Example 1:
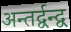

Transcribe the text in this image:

अन्तर्द्वन्द्व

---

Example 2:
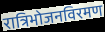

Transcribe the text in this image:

रात्रिभोजनविरमण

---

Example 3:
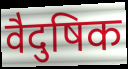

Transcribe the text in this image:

वैदुषिक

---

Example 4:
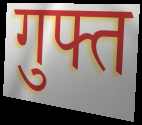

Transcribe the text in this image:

गुफ्त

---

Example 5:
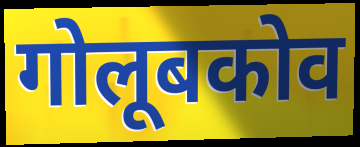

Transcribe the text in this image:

गोलूबकोव